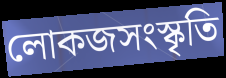
লোকজসংস্কৃতি